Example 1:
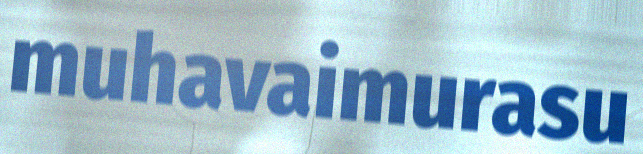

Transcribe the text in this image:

muhavaimurasu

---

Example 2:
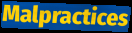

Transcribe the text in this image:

Malpractices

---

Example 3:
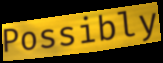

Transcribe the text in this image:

Possibly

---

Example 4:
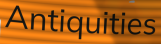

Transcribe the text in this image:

Antiquities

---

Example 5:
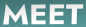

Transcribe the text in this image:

MEET